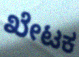
ಖೇಟಕ